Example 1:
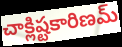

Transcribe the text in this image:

చాక్లిష్టకారిణమ్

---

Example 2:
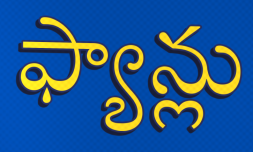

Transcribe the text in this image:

ఫ్యాన్లు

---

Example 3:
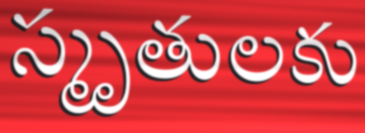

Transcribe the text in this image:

స్మృతులకు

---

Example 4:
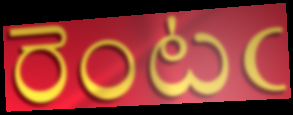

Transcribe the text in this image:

రెంటఁ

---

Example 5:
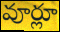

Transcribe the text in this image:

వూర్లూ